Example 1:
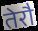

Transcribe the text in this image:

तेरौ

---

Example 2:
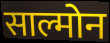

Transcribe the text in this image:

साल्मोन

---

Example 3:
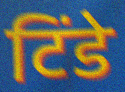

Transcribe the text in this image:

टिंडे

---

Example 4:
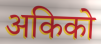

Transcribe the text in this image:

अकिको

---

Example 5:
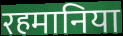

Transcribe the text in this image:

रहमानिया